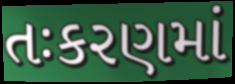
તઃકરણમાં